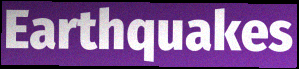
Earthquakes